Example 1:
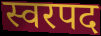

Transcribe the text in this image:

स्वरपद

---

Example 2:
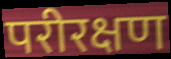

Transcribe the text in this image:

परीरक्षण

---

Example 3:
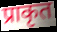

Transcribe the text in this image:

प्राकृत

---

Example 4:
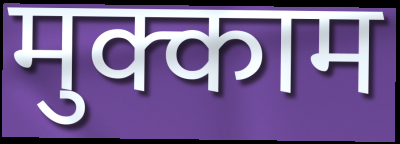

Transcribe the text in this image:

मुक्काम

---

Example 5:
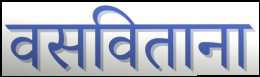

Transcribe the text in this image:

वसविताना